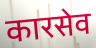
कारसेव